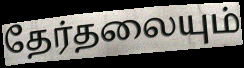
தேர்தலையும்